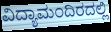
ವಿದ್ಯಾಮಂದಿರದಲ್ಲಿ